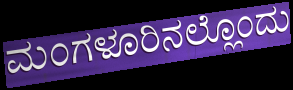
ಮಂಗಳೂರಿನಲ್ಲೊಂದು